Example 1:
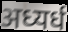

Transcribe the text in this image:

अध्यर्ध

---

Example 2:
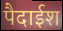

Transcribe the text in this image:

पैदाईश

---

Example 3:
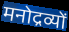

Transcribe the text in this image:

मनोद्रव्यों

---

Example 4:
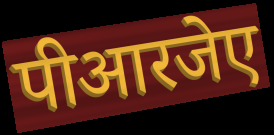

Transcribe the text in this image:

पीआरजेए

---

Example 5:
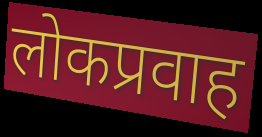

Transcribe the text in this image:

लोकप्रवाह